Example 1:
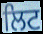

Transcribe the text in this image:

ਲਿਟ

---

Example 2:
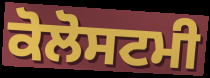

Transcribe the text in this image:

ਕੋਲੋਸਟਮੀ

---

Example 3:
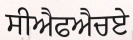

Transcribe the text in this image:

ਸੀਐਫਐਚਏ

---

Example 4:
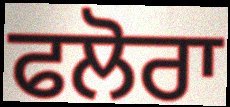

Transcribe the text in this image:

ਫਲੋਰਾ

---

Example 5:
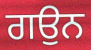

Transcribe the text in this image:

ਗਉਨ